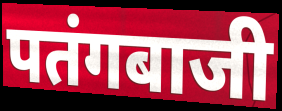
पतंगबाजी